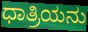
ಧಾತ್ರಿಯನು